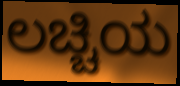
ಲಚ್ಚಿಯ